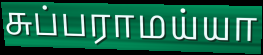
சுப்பராமய்யா